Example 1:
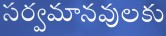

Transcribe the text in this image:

సర్వమానవులకు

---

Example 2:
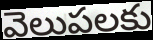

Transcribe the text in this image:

వెలుపలకు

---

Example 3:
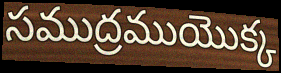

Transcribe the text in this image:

సముద్రముయొక్క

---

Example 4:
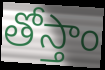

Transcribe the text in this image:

తోస్తాం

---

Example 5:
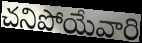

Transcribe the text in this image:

చనిపోయేవారి